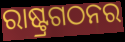
ରାଷ୍ଟ୍ରଗଠନର